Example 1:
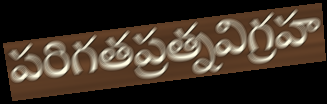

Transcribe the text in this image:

పరిగతప్రత్నవిగ్రహ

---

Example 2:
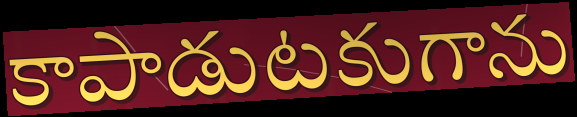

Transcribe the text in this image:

కాపాడుటకుగాను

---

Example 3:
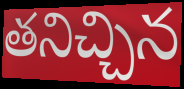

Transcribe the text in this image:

తనిచ్చిన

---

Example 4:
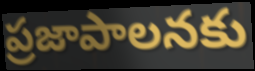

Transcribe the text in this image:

ప్రజాపాలనకు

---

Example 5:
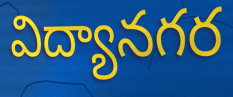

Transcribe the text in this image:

విద్యానగర